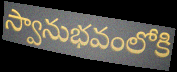
స్వానుభవంలోకి